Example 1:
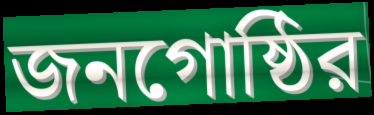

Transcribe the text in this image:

জনগোষ্ঠির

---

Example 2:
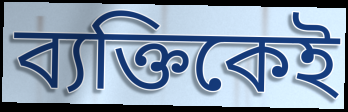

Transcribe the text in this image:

ব্যক্তিকেই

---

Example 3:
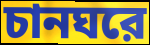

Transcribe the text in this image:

চানঘরে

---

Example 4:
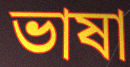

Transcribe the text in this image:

ভাষা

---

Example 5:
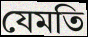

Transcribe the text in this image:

যেমতি